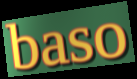
baso